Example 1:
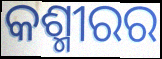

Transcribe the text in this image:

କଶ୍ମୀରର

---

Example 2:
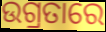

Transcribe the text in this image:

ଉଗ୍ରତାରେ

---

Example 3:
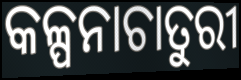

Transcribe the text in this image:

କଳ୍ପନାଚାତୁରୀ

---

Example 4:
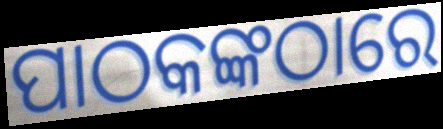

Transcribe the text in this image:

ପାଠକଙ୍କଠାରେ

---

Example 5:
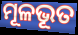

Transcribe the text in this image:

ମୂଳଭୂତ